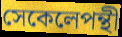
সেকেলেপন্থী